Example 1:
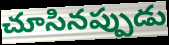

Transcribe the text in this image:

చూసినప్పుడు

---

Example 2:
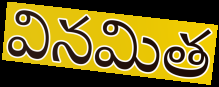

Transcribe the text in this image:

వినమిత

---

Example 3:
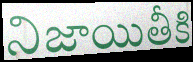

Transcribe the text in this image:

నిజాయితీకి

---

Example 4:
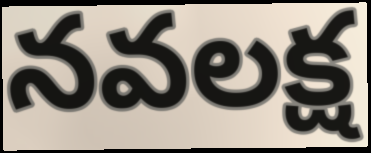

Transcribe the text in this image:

నవలక్ష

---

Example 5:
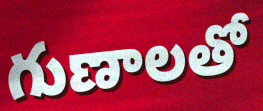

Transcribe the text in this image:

గుణాలతో